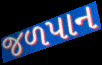
જળપાન